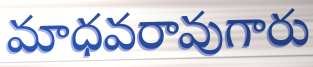
మాధవరావుగారు